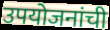
उपयोजनांची